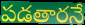
పడతారనే